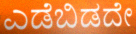
ಎಡೆಬಿಡದೇ